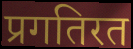
प्रगतिरत